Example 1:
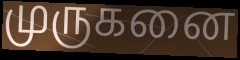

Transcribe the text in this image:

முருகனை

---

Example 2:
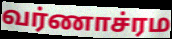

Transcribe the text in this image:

வர்ணாச்ரம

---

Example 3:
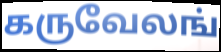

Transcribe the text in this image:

கருவேலங்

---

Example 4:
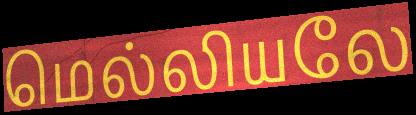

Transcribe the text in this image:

மெல்லியலே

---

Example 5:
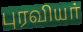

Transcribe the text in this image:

புரவியர்